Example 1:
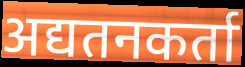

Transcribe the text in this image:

अद्यतनकर्ता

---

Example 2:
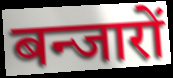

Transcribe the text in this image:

बन्जारों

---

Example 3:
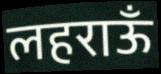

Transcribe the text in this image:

लहराऊँ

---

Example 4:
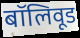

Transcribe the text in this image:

बॉलिवूड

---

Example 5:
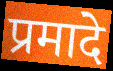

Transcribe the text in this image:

प्रमादे